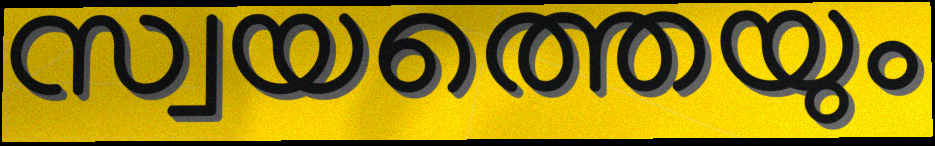
സ്വയത്തെയും